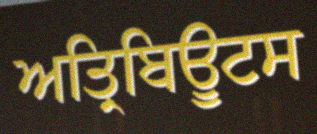
ਅਤ੍ਰਿਬਿਊਟਸ